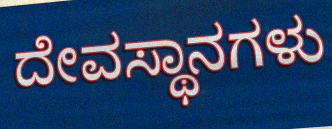
ದೇವಸ್ಥಾನಗಳು